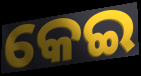
କେଇ